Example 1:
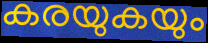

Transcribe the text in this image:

കരയുകയും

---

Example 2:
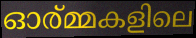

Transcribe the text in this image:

ഓര്മ്മകളിലെ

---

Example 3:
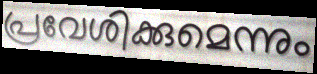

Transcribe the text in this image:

പ്രവേശിക്കുമെന്നും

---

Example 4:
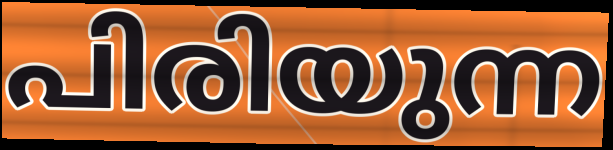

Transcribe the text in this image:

പിരിയുന്ന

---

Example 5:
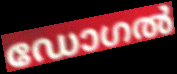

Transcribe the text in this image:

ഡോഗൽ